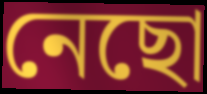
নেছো